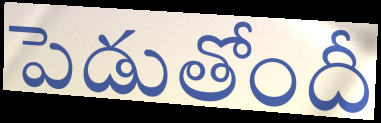
పెడుతోందీ